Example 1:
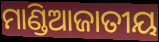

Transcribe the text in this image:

ମାଣ୍ଡିଆଜାତୀୟ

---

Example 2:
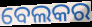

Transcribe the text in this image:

ବେଲକର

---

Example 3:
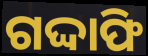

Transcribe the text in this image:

ଗଦ୍ଦାଫି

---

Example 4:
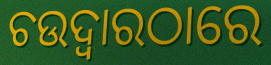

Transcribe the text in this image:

ଚଉଦ୍ଵାରଠାରେ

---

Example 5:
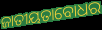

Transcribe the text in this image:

ଜାତୀୟତାବୋଧର